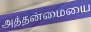
அத்தன்மையை